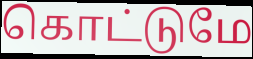
கொட்டுமே